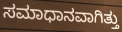
ಸಮಾಧಾನವಾಗಿತ್ತು